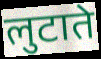
लुटाते